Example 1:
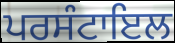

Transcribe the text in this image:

ਪਰਸੰਟਾਇਲ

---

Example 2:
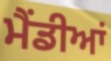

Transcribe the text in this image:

ਮੈਂਡੀਆਂ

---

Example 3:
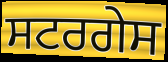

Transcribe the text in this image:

ਸਟਰਗੇਸ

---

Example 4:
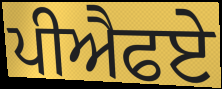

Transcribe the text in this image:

ਪੀਐਫਏ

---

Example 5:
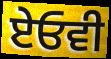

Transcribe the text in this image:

ਏਓਵੀ